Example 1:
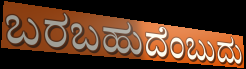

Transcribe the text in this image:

ಬರಬಹುದೆಂಬುದು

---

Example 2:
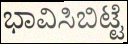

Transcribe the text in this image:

ಭಾವಿಸಿಬಿಟ್ಟೆ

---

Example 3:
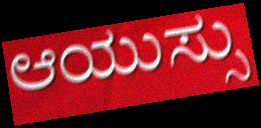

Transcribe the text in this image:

ಆಯುಸ್ಸು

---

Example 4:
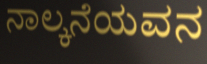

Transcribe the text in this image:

ನಾಲ್ಕನೆಯವನ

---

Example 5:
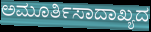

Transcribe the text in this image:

ಅಮೂರ್ತಿಸಾದಾಖ್ಯದ